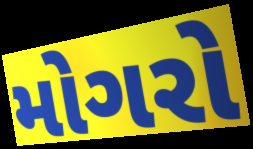
મોગરો